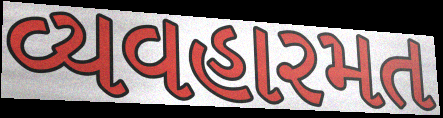
વ્યવહારમત